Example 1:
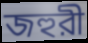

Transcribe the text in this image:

জহুরী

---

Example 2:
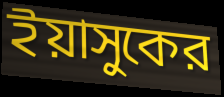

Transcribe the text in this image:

ইয়াসুকের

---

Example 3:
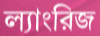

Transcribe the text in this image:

ল্যাংরিজ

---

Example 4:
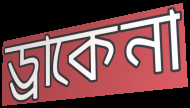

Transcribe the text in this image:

ড্রাকেনা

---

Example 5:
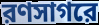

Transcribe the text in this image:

রণসাগরে